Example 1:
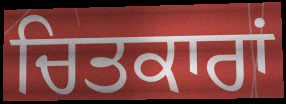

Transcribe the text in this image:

ਚਿਤਕਾਰਾਂ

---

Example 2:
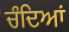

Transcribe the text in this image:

ਚੰਦਿਆਂ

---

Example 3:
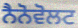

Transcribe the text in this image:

ਨੈਨੋਵੋਲਟ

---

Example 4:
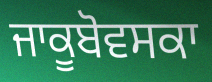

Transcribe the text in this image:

ਜਾਕੂਬੋਵਸਕਾ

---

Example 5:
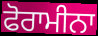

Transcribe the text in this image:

ਫੋਰਾਮੀਨਾ